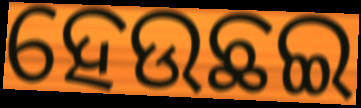
ହେଉଛଇ